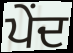
ਪੇਂਦ